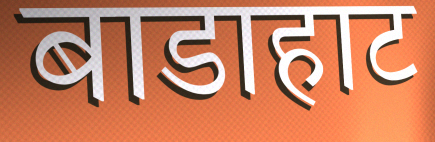
बाडाहाट